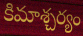
కిమాశ్చర్యం